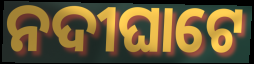
ନଦୀଘାଟେ